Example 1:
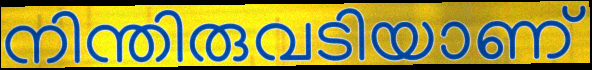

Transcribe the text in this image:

നിന്തിരുവടിയാണ്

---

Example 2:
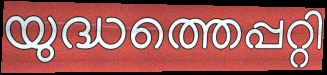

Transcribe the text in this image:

യുദ്ധത്തെപ്പറ്റി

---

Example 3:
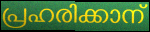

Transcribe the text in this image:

പ്രഹരിക്കാന്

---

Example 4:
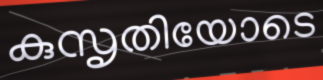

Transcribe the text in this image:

കുസൃതിയോടെ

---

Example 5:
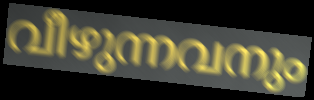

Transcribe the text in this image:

വീഴുന്നവനും